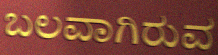
ಬಲವಾಗಿರುವ